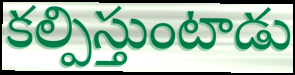
కల్పిస్తుంటాడు